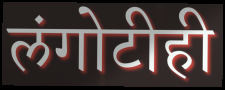
लंगोटीही